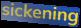
sickening